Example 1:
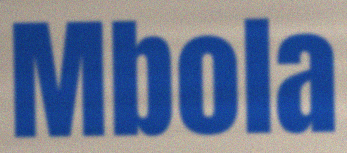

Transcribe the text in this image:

Mbola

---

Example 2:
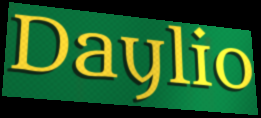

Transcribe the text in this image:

Daylio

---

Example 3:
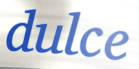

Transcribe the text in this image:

dulce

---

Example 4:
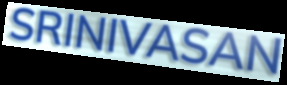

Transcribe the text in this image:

SRINIVASAN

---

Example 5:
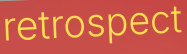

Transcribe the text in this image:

retrospect